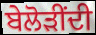
ਬੇਲੋੜੀਂਦੀ